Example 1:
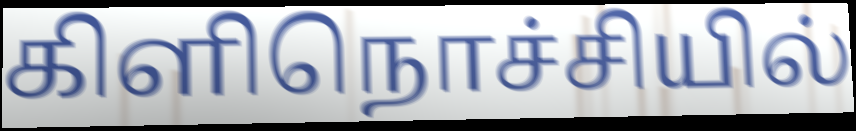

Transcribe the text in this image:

கிளிநொச்சியில்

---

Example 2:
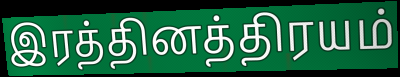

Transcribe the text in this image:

இரத்தினத்திரயம்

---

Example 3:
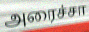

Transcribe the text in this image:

அரைச்சா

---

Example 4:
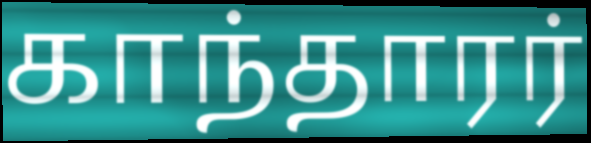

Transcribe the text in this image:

காந்தாரர்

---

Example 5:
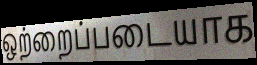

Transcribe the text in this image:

ஒற்றைப்படையாக